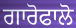
ਗਾਰੋਫਾਲੋ